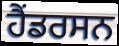
ਹੈਂਡਰਸਨ